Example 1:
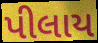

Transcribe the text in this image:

પીલાય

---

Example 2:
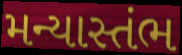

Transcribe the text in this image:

મન્યાસ્તંભ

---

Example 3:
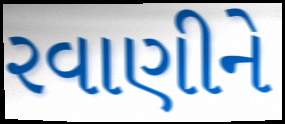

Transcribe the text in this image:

રવાણીને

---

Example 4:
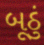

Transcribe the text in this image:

બૂઠું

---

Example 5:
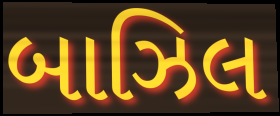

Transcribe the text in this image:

બાઝિલ